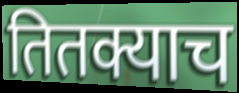
तितक्याच